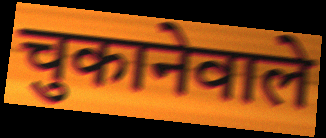
चुकानेवाले